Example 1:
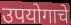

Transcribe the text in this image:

उपयोगाचे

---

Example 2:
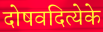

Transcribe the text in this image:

दोषवदित्येके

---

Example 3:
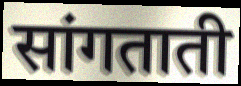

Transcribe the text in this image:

सांगताती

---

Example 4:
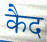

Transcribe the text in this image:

कैद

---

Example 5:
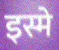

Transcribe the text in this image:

इस्मे